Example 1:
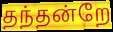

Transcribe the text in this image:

தந்தன்றே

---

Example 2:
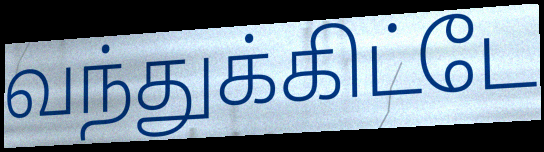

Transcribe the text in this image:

வந்துக்கிட்டே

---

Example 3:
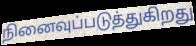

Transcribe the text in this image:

நினைவுப்படுத்துகிறது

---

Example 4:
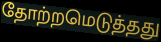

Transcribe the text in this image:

தோற்றமெடுத்தது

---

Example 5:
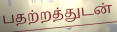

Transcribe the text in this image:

பதற்றத்துடன்